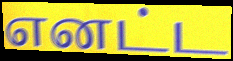
எனட்ட